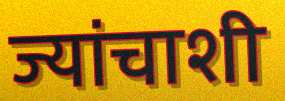
ज्यांचाशी